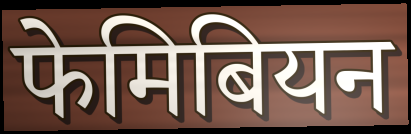
फेमिबियन